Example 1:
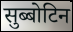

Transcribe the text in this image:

सुब्बोटिन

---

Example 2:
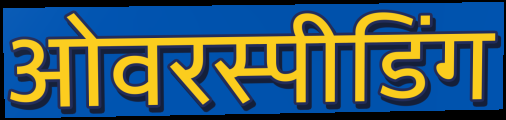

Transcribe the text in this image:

ओवरस्पीडिंग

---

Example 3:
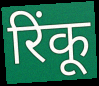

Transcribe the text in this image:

रिंकू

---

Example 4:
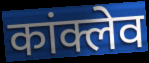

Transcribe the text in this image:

कांक्लेव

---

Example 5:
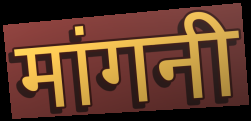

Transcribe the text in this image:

मांगनी